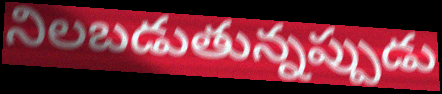
నిలబడుతున్నప్పుడు